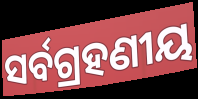
ସର୍ବଗ୍ରହଣୀୟ